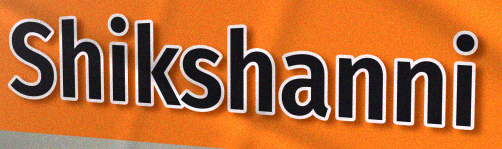
Shikshanni